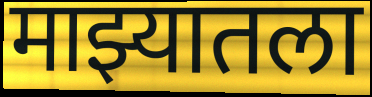
माझ्यातला